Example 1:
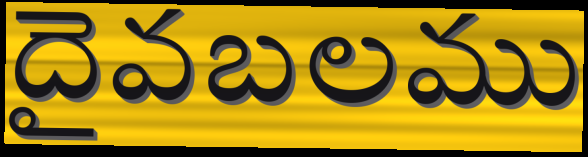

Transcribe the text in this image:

దైవబలము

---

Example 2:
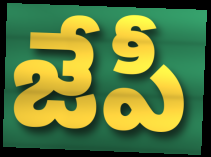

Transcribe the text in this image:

జేపీ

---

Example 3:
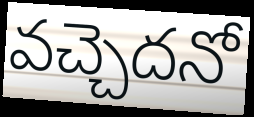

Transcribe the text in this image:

వచ్చెదనో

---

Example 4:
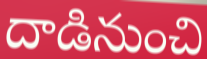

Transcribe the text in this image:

దాడినుంచి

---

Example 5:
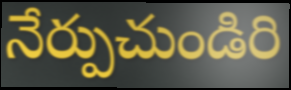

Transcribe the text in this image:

నేర్పుచుండిరి